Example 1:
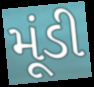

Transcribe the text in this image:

મૂંડી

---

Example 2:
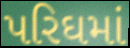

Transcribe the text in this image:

પરિઘમાં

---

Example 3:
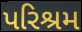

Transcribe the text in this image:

પરિશ્રમ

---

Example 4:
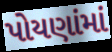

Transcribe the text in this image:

પોયણાંમાં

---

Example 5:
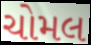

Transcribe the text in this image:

ચોમલ